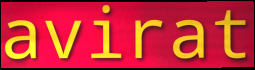
avirat